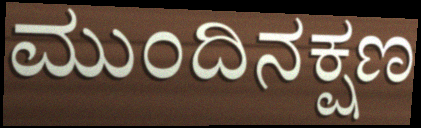
ಮುಂದಿನಕ್ಷಣ